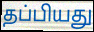
தப்பியது